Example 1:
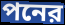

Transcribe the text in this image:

পনের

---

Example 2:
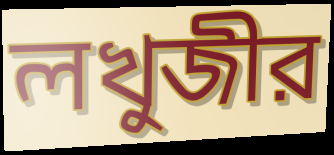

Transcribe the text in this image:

লখুজীর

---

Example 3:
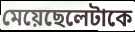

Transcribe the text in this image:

মেয়েছেলেটাকে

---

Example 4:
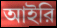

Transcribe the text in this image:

আইরি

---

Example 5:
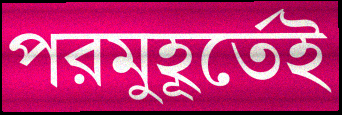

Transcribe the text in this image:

পরমুহূর্তেই